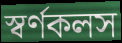
স্বর্ণকলস